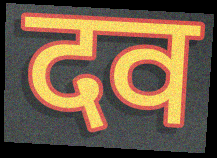
दव